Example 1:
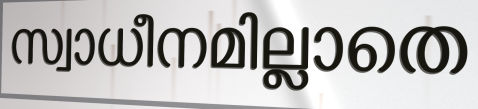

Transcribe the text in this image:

സ്വാധീനമില്ലാതെ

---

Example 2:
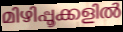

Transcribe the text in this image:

മിഴിപ്പൂക്കളിൽ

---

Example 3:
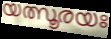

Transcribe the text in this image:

യത്സൂരയഃ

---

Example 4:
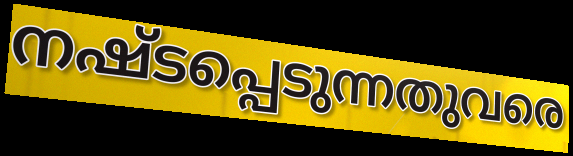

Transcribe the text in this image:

നഷ്ടപ്പെടുന്നതുവരെ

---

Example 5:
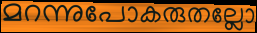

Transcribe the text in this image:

മറന്നുപോകരുതല്ലോ